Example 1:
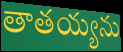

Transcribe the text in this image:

తాతయ్యను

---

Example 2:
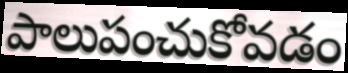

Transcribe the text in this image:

పాలుపంచుకోవడం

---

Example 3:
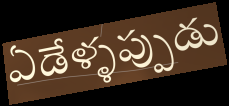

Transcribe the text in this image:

ఏడేళ్ళప్పుడు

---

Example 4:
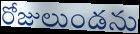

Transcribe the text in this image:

రోజులుండను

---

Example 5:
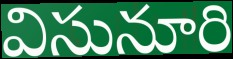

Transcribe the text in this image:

విసునూరి